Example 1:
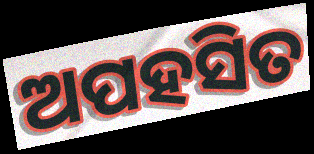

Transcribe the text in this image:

ଅପହସିତ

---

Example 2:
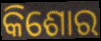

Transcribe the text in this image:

କିଶୋର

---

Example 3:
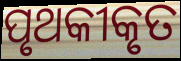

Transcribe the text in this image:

ପୃଥକୀକୃତ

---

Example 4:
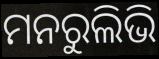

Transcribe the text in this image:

ମନରୁଲିଭି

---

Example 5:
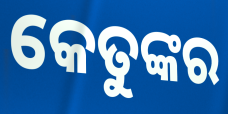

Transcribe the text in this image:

କେତୁଙ୍କର